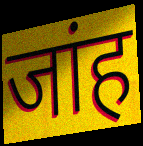
जांह